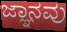
ಜ್ಞಾನವು